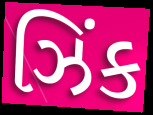
ઝિંક